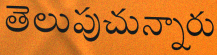
తెలుపుచున్నారు